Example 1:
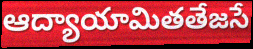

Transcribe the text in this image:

ఆద్యాయామితతేజసే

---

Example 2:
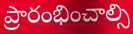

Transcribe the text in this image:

ప్రారంభించాల్సి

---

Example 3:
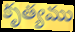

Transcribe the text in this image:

కృత్యము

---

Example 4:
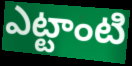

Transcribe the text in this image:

ఎట్టాంటి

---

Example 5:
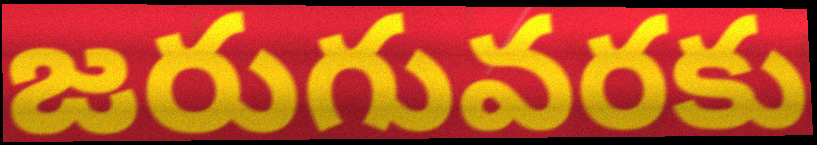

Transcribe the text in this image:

జరుగువరకు